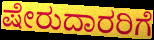
ಷೇರುದಾರರಿಗೆ